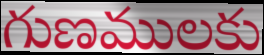
గుణములకు